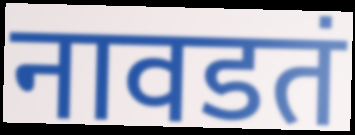
नावडतं